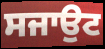
ਸਜਾਉਟ